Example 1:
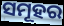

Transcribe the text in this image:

ସମୂହର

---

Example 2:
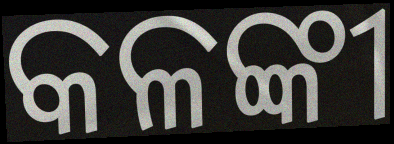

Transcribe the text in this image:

କଳଙ୍କୀ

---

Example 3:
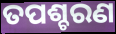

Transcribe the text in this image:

ତପଶ୍ଚରଣ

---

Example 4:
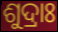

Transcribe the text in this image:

ଶୁଦ୍ରାଃ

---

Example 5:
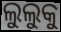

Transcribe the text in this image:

ଲୁଲୁକୁ